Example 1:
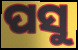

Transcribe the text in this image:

ପସୁ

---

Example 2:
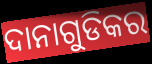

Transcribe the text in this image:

ଦାନାଗୁଡିକର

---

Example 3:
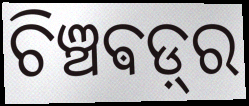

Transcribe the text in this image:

ଚିଞ୍ଚଵଡ଼୍‌ର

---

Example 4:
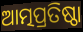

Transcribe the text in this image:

ଆତ୍ମପ୍ରତିଷ୍ଠା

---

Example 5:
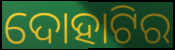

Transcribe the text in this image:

ଦୋହାଟିର